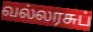
வல்லரசுப்